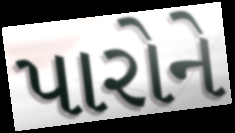
પારોને